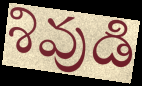
శివుడి